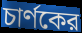
চার্ণকের